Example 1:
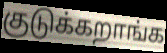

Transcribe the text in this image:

குடுக்கறாங்க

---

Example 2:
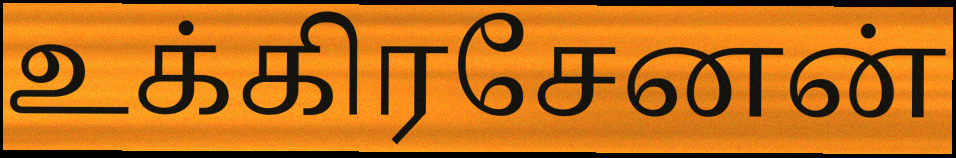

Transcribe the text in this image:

உக்கிரசேனன்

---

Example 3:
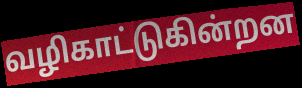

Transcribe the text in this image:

வழிகாட்டுகின்றன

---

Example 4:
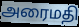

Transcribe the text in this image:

அரைமதி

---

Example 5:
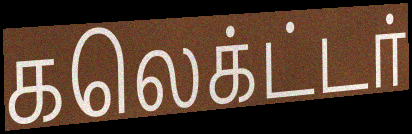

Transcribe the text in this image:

கலெக்ட்டர்